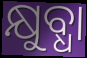
କ୍ଷୁବ୍ଧା